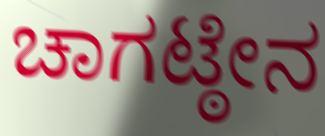
ಚಾಗಟ್ಠೇನ